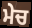
ਮੇਚ